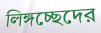
লিঙ্গচ্ছেদের